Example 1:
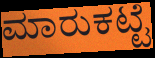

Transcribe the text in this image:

ಮಾರುಕಟ್ಟೆ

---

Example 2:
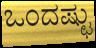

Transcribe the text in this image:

ಒಂದಷ್ಟು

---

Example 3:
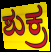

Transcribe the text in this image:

ಶುಕ್ರ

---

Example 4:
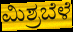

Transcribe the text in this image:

ಮಿಶ್ರಬೆಳೆ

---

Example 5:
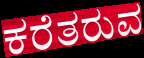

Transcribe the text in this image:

ಕರೆತರುವ